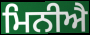
ਮਿਨੀਐ